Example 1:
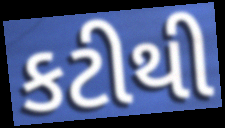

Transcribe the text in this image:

કટીથી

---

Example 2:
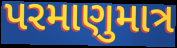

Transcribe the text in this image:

પરમાણુમાત્ર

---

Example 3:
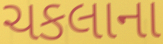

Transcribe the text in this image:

ચકલાના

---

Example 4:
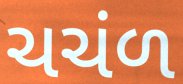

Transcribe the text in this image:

ચચંળ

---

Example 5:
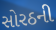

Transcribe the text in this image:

સોરઠની